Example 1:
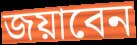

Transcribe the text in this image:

জয়াবেন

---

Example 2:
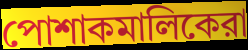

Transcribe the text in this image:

পোশাকমালিকেরা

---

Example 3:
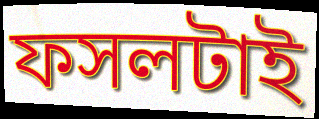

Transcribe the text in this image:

ফসলটাই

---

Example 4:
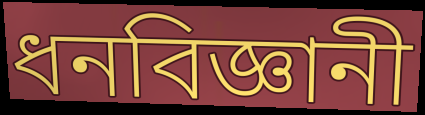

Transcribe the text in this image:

ধনবিজ্ঞানী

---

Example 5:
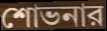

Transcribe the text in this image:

শোভনার